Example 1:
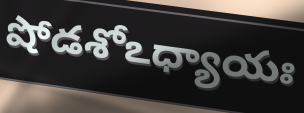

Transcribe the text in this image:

షోడశోఽధ్యాయః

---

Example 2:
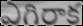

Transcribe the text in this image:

ఎగిరాక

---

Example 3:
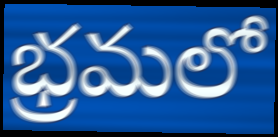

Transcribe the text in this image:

భ్రమలో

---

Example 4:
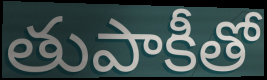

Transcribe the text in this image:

తుపాకీతో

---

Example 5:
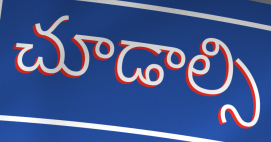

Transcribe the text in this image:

చూడాల్సి